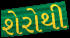
શેરોથી